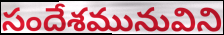
సందేశమునువిని